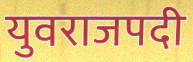
युवराजपदी